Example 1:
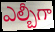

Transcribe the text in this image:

ఎల్బీగా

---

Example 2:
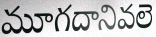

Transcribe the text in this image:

మూగదానివలె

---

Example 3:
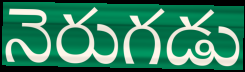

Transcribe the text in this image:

నెరుగడు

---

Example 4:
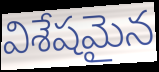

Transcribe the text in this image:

విశేషమైన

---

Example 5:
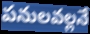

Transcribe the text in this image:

పనులవల్లనే